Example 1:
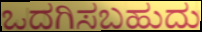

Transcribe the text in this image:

ಒದಗಿಸಬಹುದು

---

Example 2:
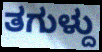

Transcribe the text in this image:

ತಗುಳ್ದು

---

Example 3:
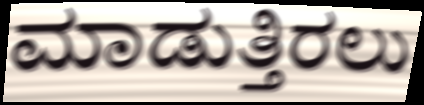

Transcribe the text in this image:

ಮಾಡುತ್ತಿರಲು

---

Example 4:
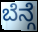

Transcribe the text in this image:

ಬೆನ್ಗೆ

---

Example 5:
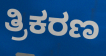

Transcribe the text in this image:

ತ್ರಿಕರಣ